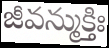
జీవన్ముక్తిః